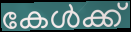
കേൾക്ക്